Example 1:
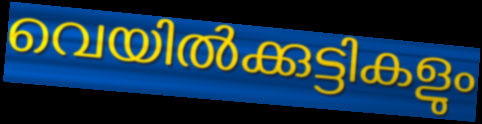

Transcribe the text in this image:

വെയിൽക്കുട്ടികളും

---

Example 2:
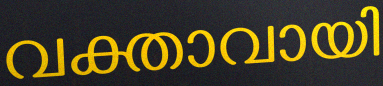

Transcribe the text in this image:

വക്താവായി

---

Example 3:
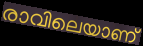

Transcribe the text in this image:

രാവിലെയാണ്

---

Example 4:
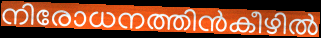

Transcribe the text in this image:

നിരോധനത്തിൻകീഴിൽ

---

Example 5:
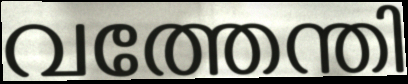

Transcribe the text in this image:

വത്തേന്തി